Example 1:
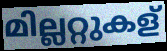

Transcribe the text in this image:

മില്ലറ്റുകള്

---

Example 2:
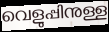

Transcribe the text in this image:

വെളുപ്പിനുള്ള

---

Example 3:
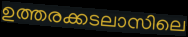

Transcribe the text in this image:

ഉത്തരക്കടലാസിലെ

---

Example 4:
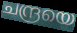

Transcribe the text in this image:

ചന്ദ്രയെ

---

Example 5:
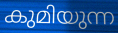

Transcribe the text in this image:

കുമിയുന്ന